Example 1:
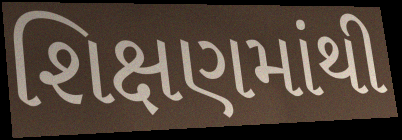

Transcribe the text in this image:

શિક્ષણમાંથી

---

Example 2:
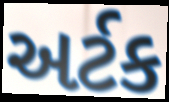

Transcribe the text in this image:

અર્ટક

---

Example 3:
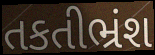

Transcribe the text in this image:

તકતીભ્રંશ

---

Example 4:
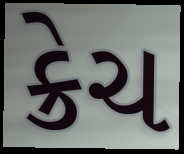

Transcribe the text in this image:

ક્રેચ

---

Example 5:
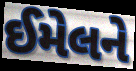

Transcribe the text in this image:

ઈમેલને